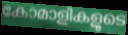
കോമാളികളുടെ